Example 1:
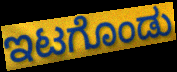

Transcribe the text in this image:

ಇಟಗೊಂಡು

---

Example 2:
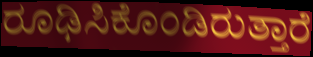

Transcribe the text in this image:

ರೂಢಿಸಿಕೊಂಡಿರುತ್ತಾರೆ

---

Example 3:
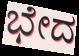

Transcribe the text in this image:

ಭೇದ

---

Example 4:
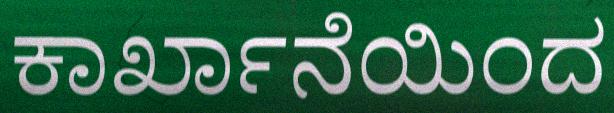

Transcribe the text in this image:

ಕಾರ್ಖಾನೆಯಿಂದ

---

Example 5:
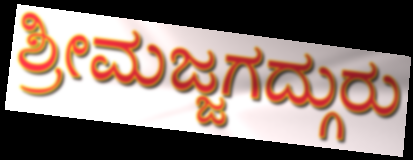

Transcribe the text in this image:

ಶ್ರೀಮಜ್ಜಗದ್ಗುರು